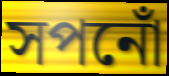
সপনোঁ